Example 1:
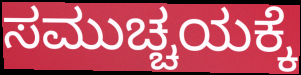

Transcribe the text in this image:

ಸಮುಚ್ಚಯಕ್ಕೆ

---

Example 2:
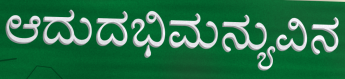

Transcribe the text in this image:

ಆದುದಭಿಮನ್ಯುವಿನ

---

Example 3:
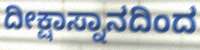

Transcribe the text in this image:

ದೀಕ್ಷಾಸ್ನಾನದಿಂದ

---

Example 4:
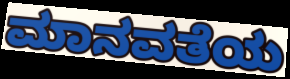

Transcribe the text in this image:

ಮಾನವತೆಯ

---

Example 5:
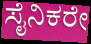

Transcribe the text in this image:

ಸೈನಿಕರೇ